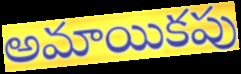
అమాయికపు